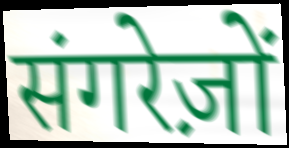
संगरेज़ों